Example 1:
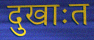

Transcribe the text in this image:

दुखाःत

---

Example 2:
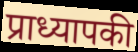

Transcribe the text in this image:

प्राध्यापकी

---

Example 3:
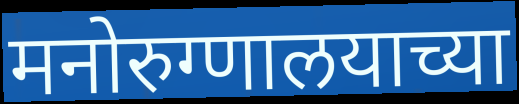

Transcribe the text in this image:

मनोरुग्णालयाच्या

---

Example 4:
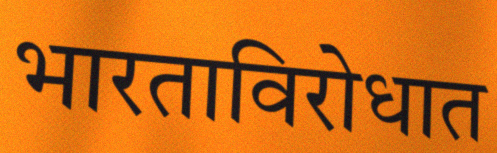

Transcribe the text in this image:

भारताविरोधात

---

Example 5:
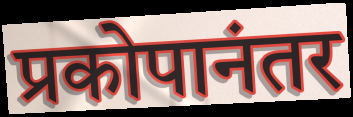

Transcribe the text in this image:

प्रकोपानंतर